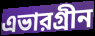
এভারগ্রীন